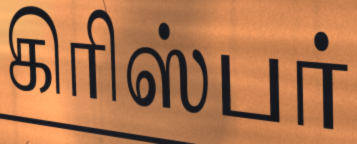
கிரிஸ்பர்